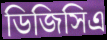
ডিজিসিএ